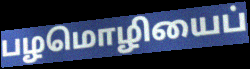
பழமொழியைப்